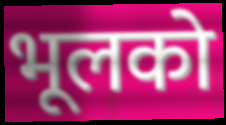
भूलको